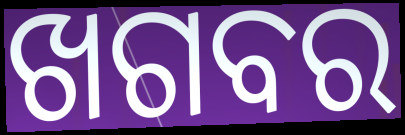
ଖଗବର